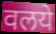
वलये